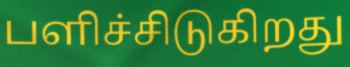
பளிச்சிடுகிறது